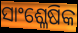
ସାଂଶ୍ଳେଷିକ